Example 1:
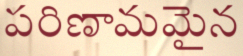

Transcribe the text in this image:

పరిణామమైన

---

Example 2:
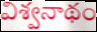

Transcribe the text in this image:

విశ్వనాథం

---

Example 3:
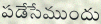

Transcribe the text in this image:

పడేసేముందు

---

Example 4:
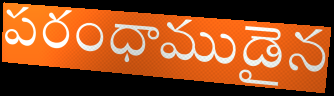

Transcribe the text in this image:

పరంధాముడైన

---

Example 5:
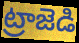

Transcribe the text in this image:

ట్రాజెడి